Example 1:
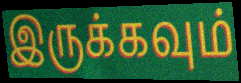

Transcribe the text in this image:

இருக்கவும்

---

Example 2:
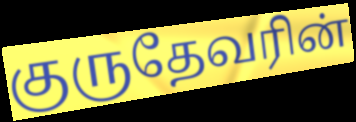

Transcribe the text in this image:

குருதேவரின்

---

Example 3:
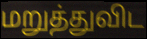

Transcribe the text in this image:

மறுத்துவிட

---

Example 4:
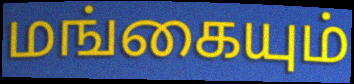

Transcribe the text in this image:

மங்கையும்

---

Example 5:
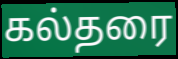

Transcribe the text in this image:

கல்தரை